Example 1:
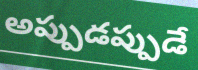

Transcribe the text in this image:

అప్పుడప్పుడే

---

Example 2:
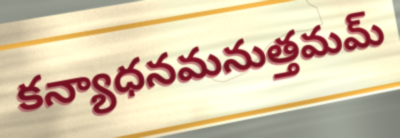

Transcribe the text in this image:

కన్యాధనమనుత్తమమ్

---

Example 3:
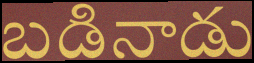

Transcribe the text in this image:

బడినాడు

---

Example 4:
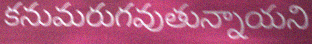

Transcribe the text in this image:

కనుమరుగవుతున్నాయని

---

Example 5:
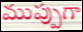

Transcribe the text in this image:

ముప్పుగా